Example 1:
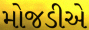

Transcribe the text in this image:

મોજડીએ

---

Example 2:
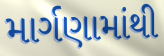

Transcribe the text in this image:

માર્ગણામાંથી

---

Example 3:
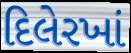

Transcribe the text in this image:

દિલેરખાં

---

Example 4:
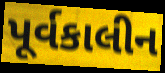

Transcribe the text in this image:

પૂર્વકાલીન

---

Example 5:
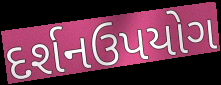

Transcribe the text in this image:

દર્શનઉપયોગ